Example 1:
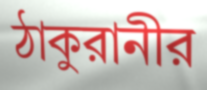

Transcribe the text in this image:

ঠাকুরানীর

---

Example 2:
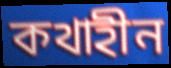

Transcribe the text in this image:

কথাহীন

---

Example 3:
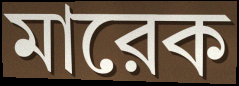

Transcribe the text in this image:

মারেক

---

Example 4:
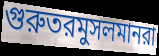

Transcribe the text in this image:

গুরুতরমুসলমানরা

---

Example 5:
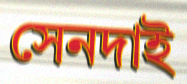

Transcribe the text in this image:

সেনদাই